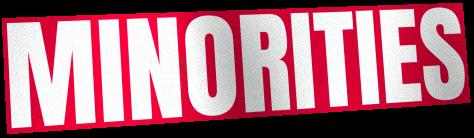
MINORITIES